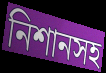
নিশানসহ